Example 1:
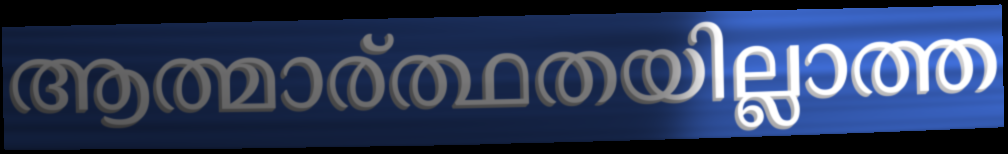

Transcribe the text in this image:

ആത്മാര്ത്ഥതയില്ലാത്ത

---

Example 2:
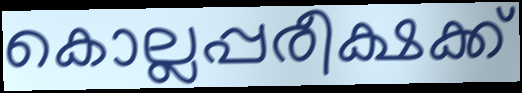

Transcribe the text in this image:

കൊല്ലപ്പരീക്ഷക്ക്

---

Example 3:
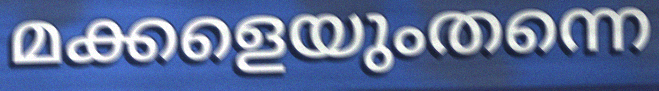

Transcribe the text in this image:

മക്കളെയുംതന്നെ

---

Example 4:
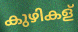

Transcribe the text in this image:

കുഴികള്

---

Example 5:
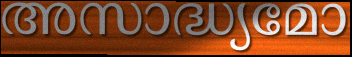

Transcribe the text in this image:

അസാദ്ധ്യമോ